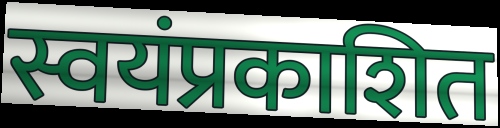
स्वयंप्रकाशित